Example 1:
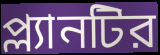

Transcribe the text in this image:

প্ল্যানটির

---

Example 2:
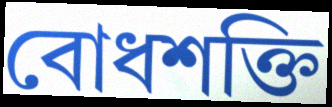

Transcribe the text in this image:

বোধশক্তি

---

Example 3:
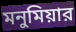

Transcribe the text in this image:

মনুমিয়ার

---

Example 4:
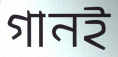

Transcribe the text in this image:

গানই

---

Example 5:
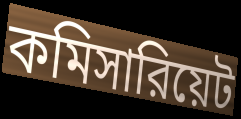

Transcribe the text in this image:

কমিসারিয়েট